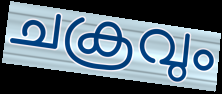
ചക്രവും